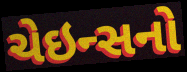
ચેઇન્સનો